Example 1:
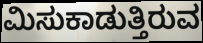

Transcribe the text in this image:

ಮಿಸುಕಾಡುತ್ತಿರುವ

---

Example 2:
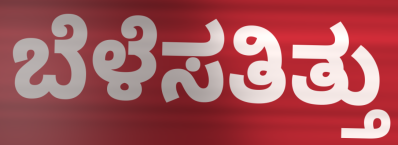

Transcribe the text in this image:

ಬೆಳೆಸತಿತ್ತು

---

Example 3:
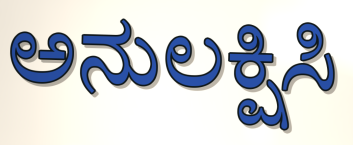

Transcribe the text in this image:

ಅನುಲಕ್ಷಿಸಿ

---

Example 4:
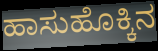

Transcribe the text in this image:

ಹಾಸುಹೊಕ್ಕಿನ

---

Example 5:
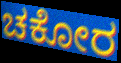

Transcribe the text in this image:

ಚಕೋರ